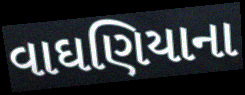
વાઘણિયાના